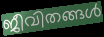
ജീവിതങ്ങൾ